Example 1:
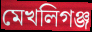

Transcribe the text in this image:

মেখলিগঞ্জ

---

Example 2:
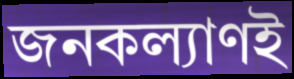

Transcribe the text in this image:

জনকল্যাণই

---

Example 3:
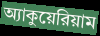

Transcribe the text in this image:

অ্যাকুয়েরিয়াম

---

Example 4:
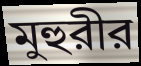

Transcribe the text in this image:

মুহুরীর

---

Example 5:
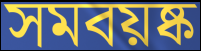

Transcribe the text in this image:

সমবয়ষ্ক